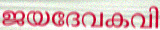
ജയദേവകവി